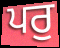
ਪਰੁ